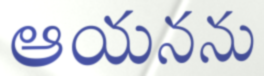
ఆయనను